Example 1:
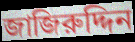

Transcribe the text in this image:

জাজিরুদ্দিন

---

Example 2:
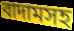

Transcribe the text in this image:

বাদামসহ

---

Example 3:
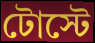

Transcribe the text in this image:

টোস্টে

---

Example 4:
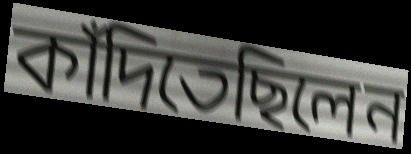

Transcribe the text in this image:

কাঁদিতেছিলেন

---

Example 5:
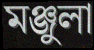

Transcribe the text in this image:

মঞ্জুলা